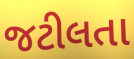
જટીલતા